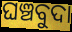
ଘଞ୍ଚବୁଦା